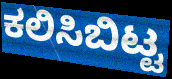
ಕಲಿಸಿಬಿಟ್ಟ